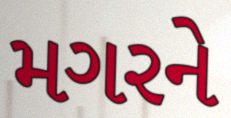
મગરને